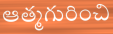
ఆత్మగురించి